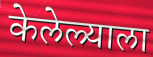
केलेल्याला